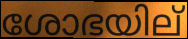
ശോഭയില്